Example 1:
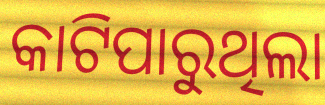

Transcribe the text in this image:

କାଟିପାରୁଥିଲା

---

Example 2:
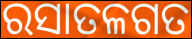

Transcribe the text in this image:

ରସାତଳଗତ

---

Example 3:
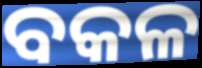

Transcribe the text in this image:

ବକଳ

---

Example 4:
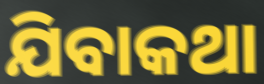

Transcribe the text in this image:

ଯିବାକଥା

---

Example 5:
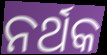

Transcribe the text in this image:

ନର୍ଥକ